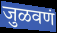
जुळवणं